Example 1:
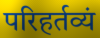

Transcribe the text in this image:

परिहर्तव्यं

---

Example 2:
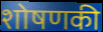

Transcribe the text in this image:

शोषणकी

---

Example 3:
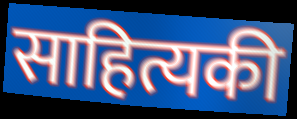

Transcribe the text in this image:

साहित्यकी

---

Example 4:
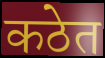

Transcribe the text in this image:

कठेत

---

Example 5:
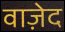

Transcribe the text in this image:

वाज़ेद